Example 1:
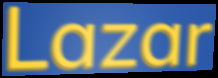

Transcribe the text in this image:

Lazar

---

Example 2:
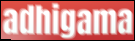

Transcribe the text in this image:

adhigama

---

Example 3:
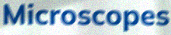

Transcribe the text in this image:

Microscopes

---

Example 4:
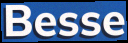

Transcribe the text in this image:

Besse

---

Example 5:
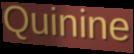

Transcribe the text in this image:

Quinine